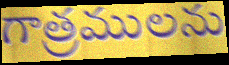
గాత్రములను